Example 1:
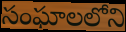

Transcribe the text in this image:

సంఘాలలోని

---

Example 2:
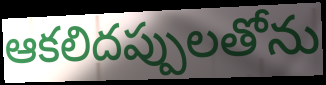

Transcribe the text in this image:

ఆకలిదప్పులతోను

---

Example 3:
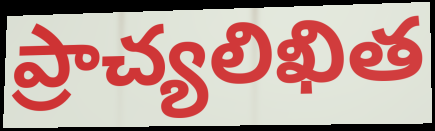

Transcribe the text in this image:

ప్రాచ్యలిఖిత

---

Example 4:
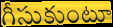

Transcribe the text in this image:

గీసుకుంటూ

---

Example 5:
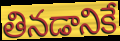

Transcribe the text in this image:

తినడానికే